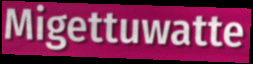
Migettuwatte